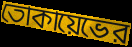
তোকায়েভের